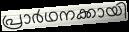
പ്രാർഥനക്കായി